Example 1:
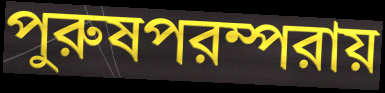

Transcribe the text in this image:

পুরুষপরম্পরায়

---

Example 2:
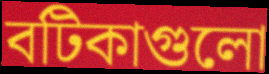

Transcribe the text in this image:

বটিকাগুলো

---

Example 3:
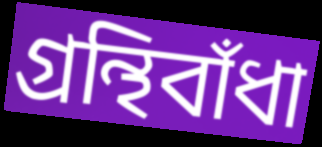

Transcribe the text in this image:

গ্রন্থিবাঁধা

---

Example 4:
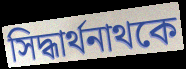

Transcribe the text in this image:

সিদ্ধার্থনাথকে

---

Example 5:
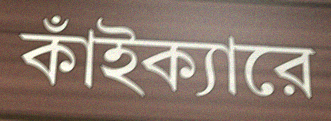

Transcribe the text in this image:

কাঁইক্যারে